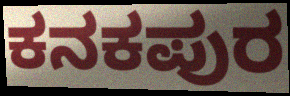
ಕನಕಪುರ